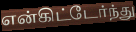
என்கிட்டேர்ந்து